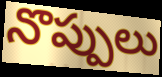
నొప్పులు